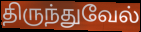
திருந்துவேல்